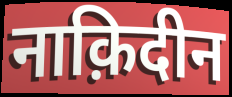
नाक़िदीन